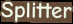
Splitter